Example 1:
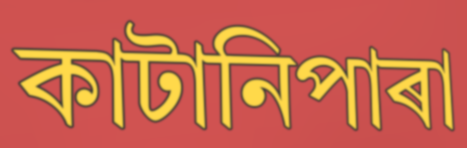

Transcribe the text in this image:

কাটানিপাৰা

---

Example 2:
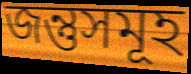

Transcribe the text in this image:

জন্তুসমূহ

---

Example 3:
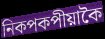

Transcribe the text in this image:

নিকপকপীয়াকৈ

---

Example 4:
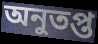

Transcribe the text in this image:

অনুতপ্ত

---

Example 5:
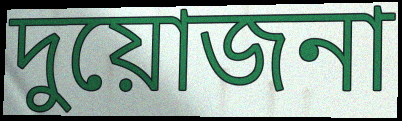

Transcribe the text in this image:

দুয়োজনা